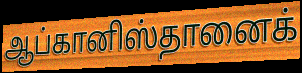
ஆப்கானிஸ்தானைக்